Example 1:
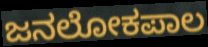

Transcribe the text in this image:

ಜನಲೋಕಪಾಲ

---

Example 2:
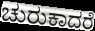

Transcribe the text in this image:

ಚುರುಕಾದರೆ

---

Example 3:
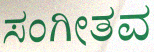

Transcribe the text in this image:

ಸಂಗೀತವ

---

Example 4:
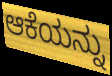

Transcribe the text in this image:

ಆಕೆಯನ್ನು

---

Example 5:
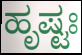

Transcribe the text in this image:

ಹೃಷ್ಟಃ